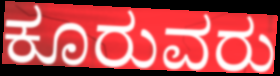
ಕೂರುವರು